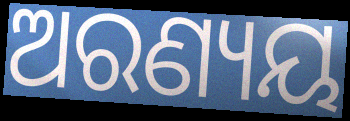
ଅରଣ୍ୟୟ